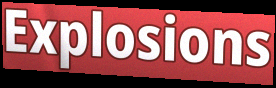
Explosions